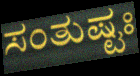
ಸಂತುಷ್ಟಃ